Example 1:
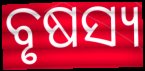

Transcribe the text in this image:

ବୃଷସ୍ୟ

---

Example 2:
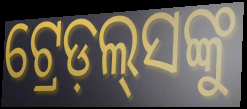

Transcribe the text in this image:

ଟ୍ରେଡ଼ଲ୍‍ସଙ୍କୁ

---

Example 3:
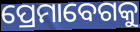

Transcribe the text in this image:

ପ୍ରେମାବେଗକୁ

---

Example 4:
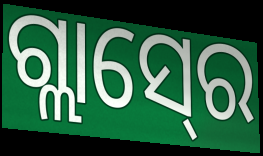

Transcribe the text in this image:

ଗ୍ଲାସ୍‍ରେ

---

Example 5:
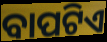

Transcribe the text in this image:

ବାପଟିଏ